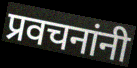
प्रवचनांनी